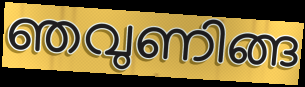
ഞവുണിങ്ങ